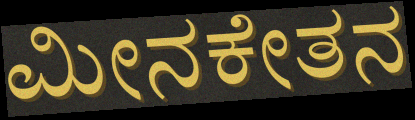
ಮೀನಕೇತನ